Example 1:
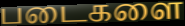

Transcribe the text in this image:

படைகளை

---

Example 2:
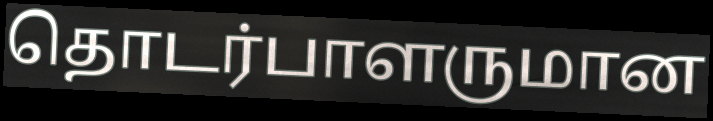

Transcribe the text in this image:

தொடர்பாளருமான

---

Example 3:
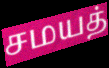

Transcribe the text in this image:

சமயத்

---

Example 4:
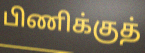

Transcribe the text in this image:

பிணிக்குத்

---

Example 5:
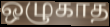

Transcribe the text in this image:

ஒழுகாத